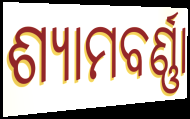
ଶ୍ୟାମବର୍ଣ୍ଣା